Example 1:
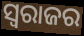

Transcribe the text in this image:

ସ୍ୱରାଜର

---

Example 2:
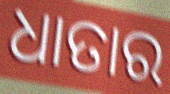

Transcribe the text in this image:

ଧାତାର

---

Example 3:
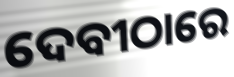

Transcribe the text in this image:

ଦେବୀଠାରେ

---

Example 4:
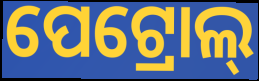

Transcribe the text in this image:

ପେଟ୍ରୋଲ୍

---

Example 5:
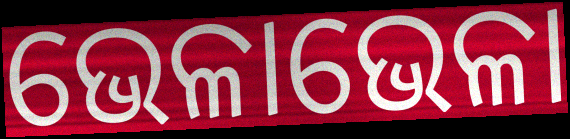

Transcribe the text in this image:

ଭେଳାଭେଳା